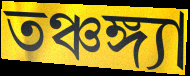
তঞ্চঙ্গ্যা